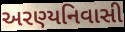
અરણ્યનિવાસી